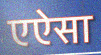
एऐसा